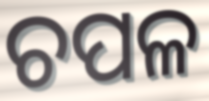
ଚପଳ